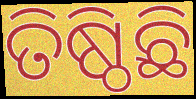
ତିଷ୍ଠିଛି